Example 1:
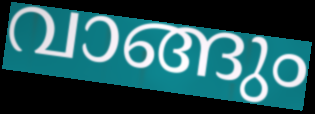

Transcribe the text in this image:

വാങ്ങും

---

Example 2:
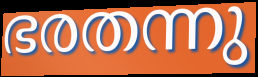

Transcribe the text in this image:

ഭരതന്നു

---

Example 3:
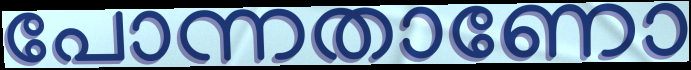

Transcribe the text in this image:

പോന്നതാണോ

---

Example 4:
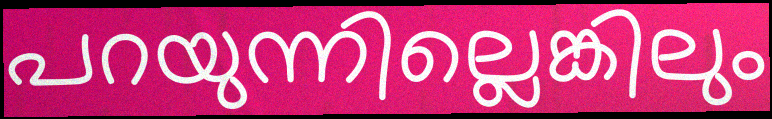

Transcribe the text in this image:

പറയുന്നില്ലെങ്കിലും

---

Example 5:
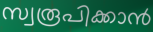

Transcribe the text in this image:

സ്വരൂപിക്കാൻ